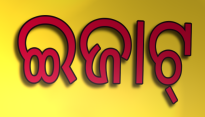
ଇଜାଟ୍